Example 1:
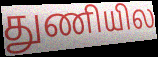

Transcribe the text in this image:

துணியில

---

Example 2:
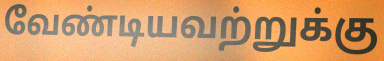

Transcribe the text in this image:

வேண்டியவற்றுக்கு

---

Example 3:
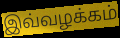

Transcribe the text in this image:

இவ்வழக்கம்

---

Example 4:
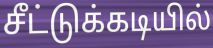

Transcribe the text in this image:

சீட்டுக்கடியில்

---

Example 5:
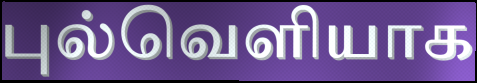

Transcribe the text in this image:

புல்வெளியாக